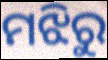
ମଝିରୁ